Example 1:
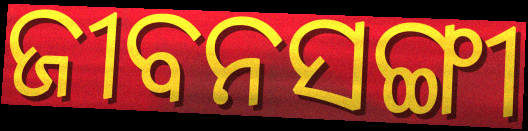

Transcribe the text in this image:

ଜୀବନସଙ୍ଗୀ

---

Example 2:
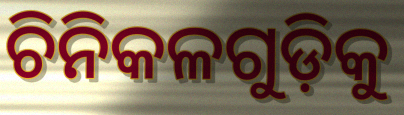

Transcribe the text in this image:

ଚିନିକଳଗୁଡ଼ିକୁ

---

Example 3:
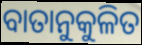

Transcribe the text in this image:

ବାତାନୁକୁଳିତ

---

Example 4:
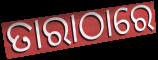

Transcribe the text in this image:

ତାରାଠାରେ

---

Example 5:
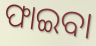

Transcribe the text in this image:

ଫାଇବା